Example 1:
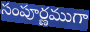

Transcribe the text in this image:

సంపూర్ణముగా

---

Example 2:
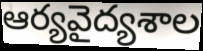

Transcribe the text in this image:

ఆర్యవైద్యశాల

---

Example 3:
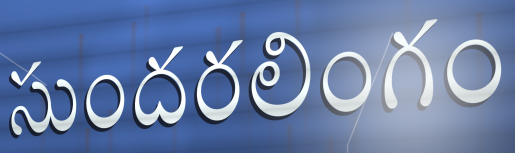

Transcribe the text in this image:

సుందరలింగం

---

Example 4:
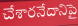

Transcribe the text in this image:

చేశారనేదానిపై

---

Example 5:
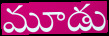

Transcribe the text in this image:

మూడు